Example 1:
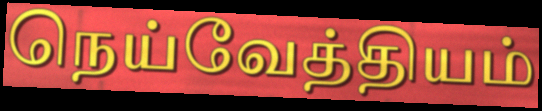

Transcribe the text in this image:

நெய்வேத்தியம்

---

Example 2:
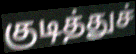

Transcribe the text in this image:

குடித்துச்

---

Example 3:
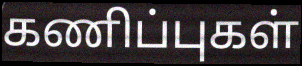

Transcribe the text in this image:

கணிப்புகள்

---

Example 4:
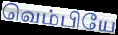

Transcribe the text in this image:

வெம்பியே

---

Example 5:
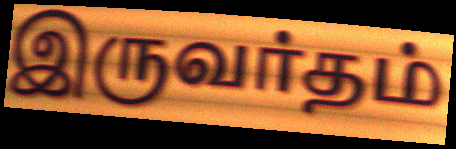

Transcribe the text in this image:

இருவர்தம்